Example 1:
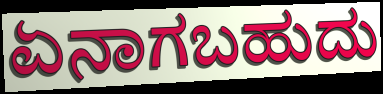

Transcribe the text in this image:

ಏನಾಗಬಹುದು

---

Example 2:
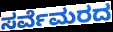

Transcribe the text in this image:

ಸರ್ವೆಮರದ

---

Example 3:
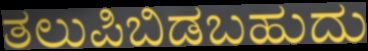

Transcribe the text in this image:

ತಲುಪಿಬಿಡಬಹುದು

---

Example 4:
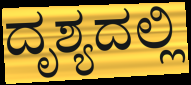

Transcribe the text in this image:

ದೃಶ್ಯದಲ್ಲಿ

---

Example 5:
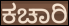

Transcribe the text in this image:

ಕಚಾರಿ